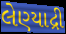
લેણ્યાદ્રી